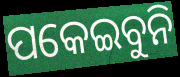
ପକେଇବୁନି